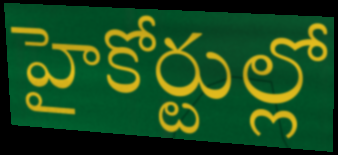
హైకోర్టుల్లో